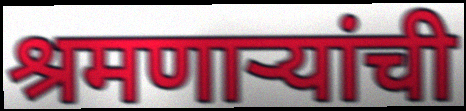
श्रमणाऱ्यांची